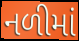
નળીમાં